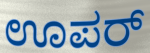
ಊಪರ್